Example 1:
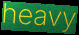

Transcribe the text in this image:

heavy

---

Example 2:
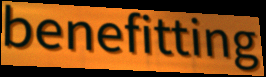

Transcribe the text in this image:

benefitting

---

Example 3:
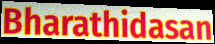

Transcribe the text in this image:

Bharathidasan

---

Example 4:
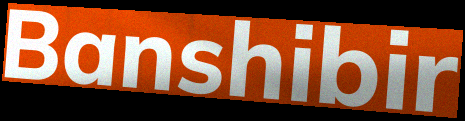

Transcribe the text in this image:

Banshibir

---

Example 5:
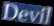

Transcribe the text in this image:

Devil